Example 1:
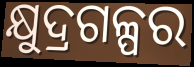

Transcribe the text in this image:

କ୍ଷୁଦ୍ରଗଳ୍ପର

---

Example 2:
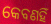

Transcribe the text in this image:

କେବଣହିଁ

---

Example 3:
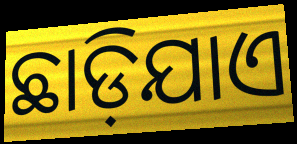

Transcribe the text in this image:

ଛାଡ଼ିଯାଏ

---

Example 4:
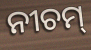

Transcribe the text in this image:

ନୀଚମ୍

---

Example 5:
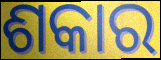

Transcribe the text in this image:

ଶକାର